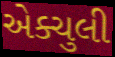
એક્ચુલી